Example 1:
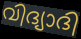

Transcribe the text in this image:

വിദ്യാദി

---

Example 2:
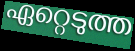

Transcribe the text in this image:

ഏറ്റെടുത്ത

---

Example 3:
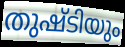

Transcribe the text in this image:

തുഷ്ടിയും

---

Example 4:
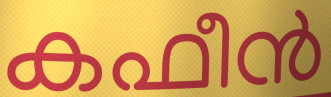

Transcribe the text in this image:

കഫീൻ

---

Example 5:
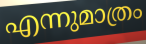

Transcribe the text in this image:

എന്നുമാത്രം